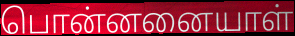
பொன்னனையாள்